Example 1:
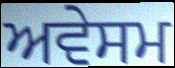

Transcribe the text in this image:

ਅਵੇਸਮ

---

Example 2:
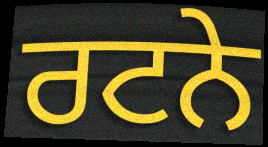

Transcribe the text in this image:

ਰਟਨੇ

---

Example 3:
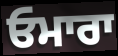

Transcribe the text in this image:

ਓਮਾਰਾ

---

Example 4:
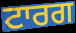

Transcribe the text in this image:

ਟਾਰਗ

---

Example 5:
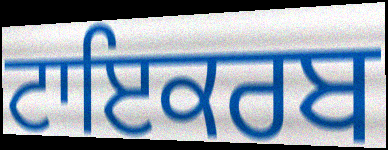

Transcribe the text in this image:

ਟਾਇਕਰਬ